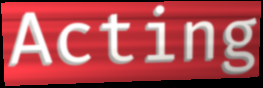
Acting